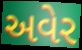
અવેર